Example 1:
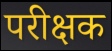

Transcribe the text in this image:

परीक्षक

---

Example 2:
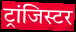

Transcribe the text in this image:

ट्रांजिस्टर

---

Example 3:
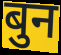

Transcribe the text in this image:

बुन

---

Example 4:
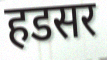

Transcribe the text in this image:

हडसर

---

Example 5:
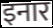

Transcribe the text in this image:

इनार